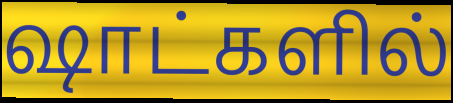
ஷாட்களில்